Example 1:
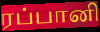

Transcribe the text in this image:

ரப்பானி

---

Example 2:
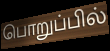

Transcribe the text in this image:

பொறுப்பில்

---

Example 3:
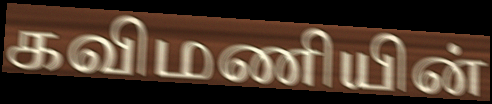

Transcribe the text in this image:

கவிமணியின்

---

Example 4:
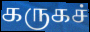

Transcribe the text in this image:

கருகச்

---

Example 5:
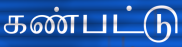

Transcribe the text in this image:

கண்பட்டு